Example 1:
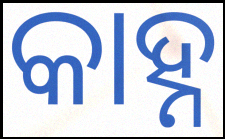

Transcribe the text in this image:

କାହ୍ନ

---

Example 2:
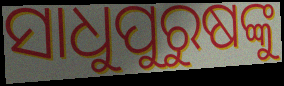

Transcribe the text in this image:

ସାଧୁପୁରୁଷଙ୍କୁ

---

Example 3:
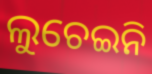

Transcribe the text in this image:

ଲୁଚେଇନି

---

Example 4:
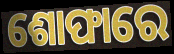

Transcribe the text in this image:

ଶୋଫାରେ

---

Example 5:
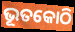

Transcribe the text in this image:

ଭୂତକୋଠି